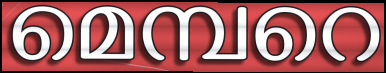
മെമ്പറെ